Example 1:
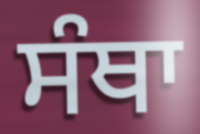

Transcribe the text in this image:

ਸੰਥਾ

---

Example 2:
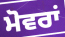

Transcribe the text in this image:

ਮੋਵਰਾਂ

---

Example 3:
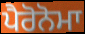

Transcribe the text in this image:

ਪੈਰੋਨੋਮਾ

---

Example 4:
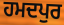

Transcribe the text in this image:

ਹਮਦਪੁਰ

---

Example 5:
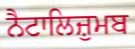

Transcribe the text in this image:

ਨੈਟਾਲਿਜ਼ੁਮਬ